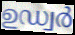
ഉഡ്വർ